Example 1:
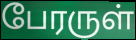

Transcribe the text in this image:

பேரருள்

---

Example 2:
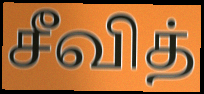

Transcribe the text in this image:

சீவித்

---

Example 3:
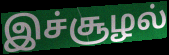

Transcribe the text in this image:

இச்சூழல்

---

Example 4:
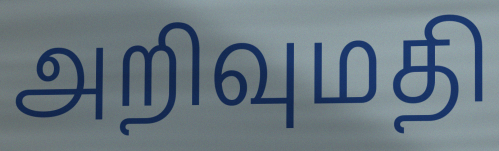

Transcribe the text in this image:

அறிவுமதி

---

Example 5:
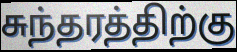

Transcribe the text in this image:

சுந்தரத்திற்கு